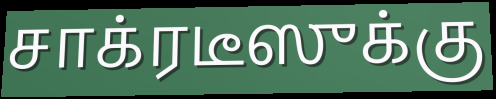
சாக்ரடீஸுக்கு